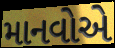
માનવોએ